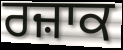
ਰਜ਼ਾਕ